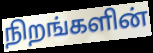
நிறங்களின்